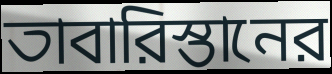
তাবারিস্তানের